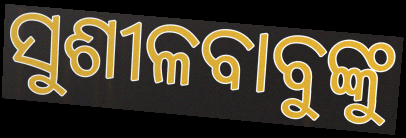
ସୁଶୀଳବାବୁଙ୍କୁ